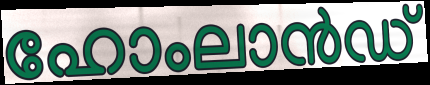
ഹോംലാൻഡ്